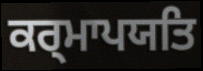
ਕਰ੍ਮਾਪਯਤਿ